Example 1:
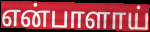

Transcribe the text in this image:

என்பாளாய்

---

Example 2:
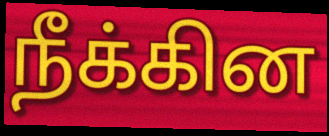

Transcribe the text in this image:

நீக்கின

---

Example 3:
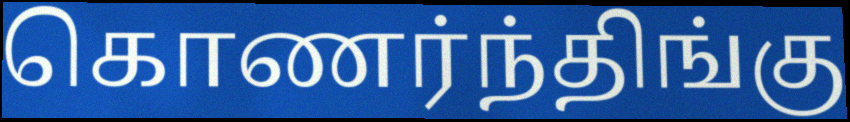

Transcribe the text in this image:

கொணர்ந்திங்கு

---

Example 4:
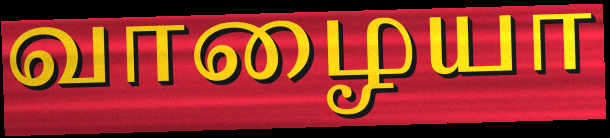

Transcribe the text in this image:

வாழையா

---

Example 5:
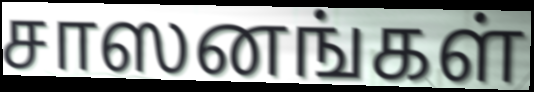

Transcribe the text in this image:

சாஸனங்கள்